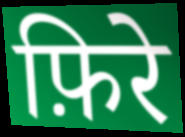
फ़िरे